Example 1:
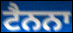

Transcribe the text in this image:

ਟੈਨਨਾ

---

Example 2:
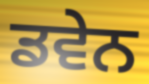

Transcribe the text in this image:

ਡਵੇਨ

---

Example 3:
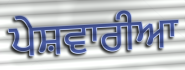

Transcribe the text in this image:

ਪੇਸ਼ਵਾਰੀਆ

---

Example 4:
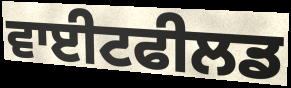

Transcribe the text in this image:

ਵਾਈਟਫੀਲਡ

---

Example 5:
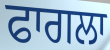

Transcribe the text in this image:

ਫਾਗਲਾ